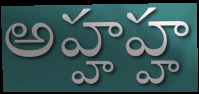
అహ్హహ్హ